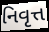
નિવૃત્ત